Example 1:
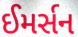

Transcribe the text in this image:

ઈમર્સન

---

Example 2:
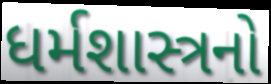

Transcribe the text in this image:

ધર્મશાસ્ત્રનો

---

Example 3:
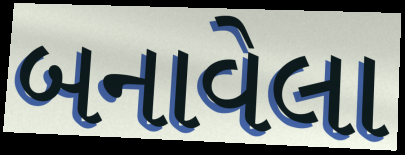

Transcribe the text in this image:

બનાવેલા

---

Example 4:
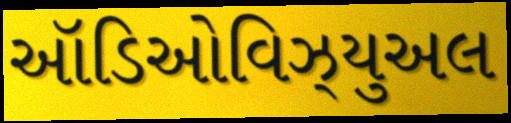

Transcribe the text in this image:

ઑડિઓવિઝ્યુઅલ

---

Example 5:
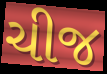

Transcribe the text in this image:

ચીજ